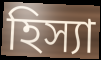
হিস্যা